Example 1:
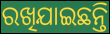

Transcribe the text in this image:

ରଖିଯାଇଛନ୍ତି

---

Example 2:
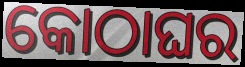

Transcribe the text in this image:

କୋଠାଘର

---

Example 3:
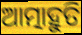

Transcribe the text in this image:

ଆତ୍ମାହୁତି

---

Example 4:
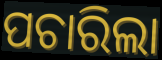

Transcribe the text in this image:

ପଚାରିଲା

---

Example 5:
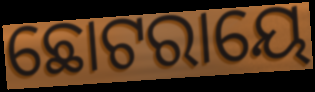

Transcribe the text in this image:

ଛୋଟରାୟେ